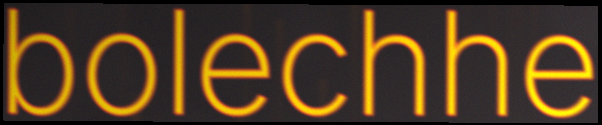
bolechhe